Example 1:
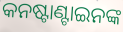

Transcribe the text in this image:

କନଷ୍ଟାଣ୍ଟାଇନଙ୍କ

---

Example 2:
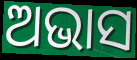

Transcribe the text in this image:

ଅଭାସ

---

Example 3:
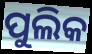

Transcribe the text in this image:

ପୁଲିକ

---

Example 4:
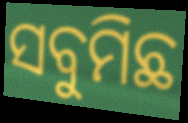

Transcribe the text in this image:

ସବୁମିଛ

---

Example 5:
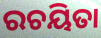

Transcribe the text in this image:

ରଚୟିତା